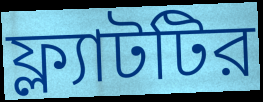
ফ্ল্যাটটির